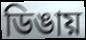
ডিঙায়